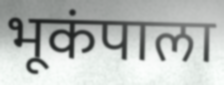
भूकंपाला